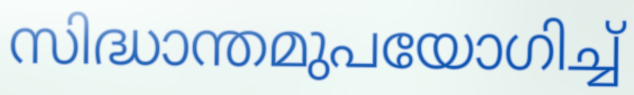
സിദ്ധാന്തമുപയോഗിച്ച്